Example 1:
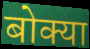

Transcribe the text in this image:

बोक्या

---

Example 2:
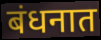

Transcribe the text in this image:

बंधनात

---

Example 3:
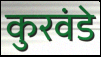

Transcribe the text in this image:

कुरवंडे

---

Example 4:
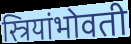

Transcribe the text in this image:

स्त्रियांभोवती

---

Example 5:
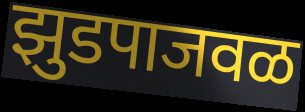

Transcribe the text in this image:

झुडपाजवळ